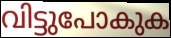
വിട്ടുപോകുക